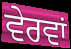
ਵੇਰਵਾਂ